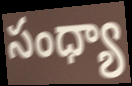
సంధ్యా